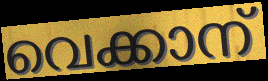
വെക്കാന്